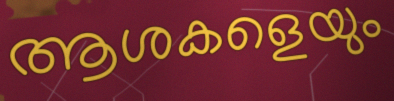
ആശകളെയും